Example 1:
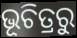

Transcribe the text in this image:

ଭୂଚିତ୍ରରୁ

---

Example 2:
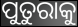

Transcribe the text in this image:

ପୁତୁରାକୁ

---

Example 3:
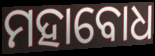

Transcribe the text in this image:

ମହାବୋଧ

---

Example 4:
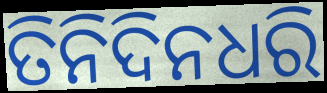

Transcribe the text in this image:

ତିନିଦିନଧରି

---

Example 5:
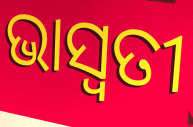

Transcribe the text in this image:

ଭାସ୍ବତୀ